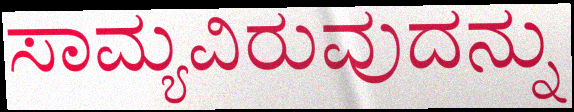
ಸಾಮ್ಯವಿರುವುದನ್ನು